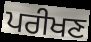
ਪਰੀਖਣ